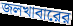
জলখাবারের